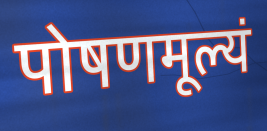
पोषणमूल्यं